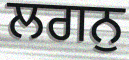
ਲਗਨੁ